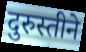
दुरुस्तीने